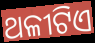
ଥଳୀଟିଏ